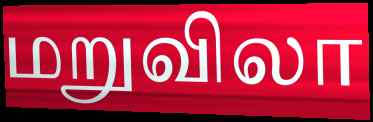
மறுவிலா